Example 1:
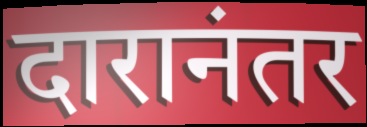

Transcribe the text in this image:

दारानंतर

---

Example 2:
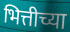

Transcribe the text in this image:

भित्तीच्या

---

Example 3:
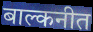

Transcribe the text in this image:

बाल्कनीत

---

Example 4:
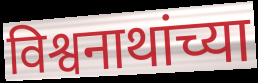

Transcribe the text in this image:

विश्वनाथांच्या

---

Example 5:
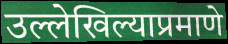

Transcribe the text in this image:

उल्लेखिल्याप्रमाणे